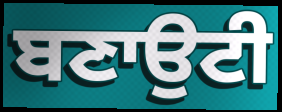
ਬਣਾਉਟੀ